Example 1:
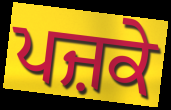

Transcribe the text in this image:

ਪਜ਼ਕੇ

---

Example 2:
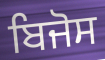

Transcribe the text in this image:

ਬਿਜੋਸ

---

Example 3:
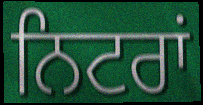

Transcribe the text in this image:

ਨਿਟਰਾਂ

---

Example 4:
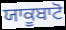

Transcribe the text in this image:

ਯਾਕੂਬਾਟੋ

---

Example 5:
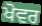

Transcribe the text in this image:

ਖੋਵਰ